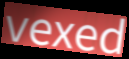
vexed